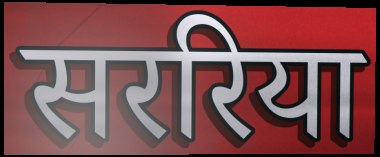
सररिया